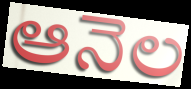
ఆనెల